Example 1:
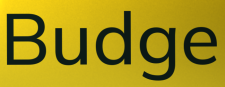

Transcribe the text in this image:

Budge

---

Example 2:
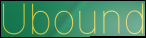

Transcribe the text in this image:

Ubound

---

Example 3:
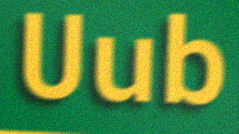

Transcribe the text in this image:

Uub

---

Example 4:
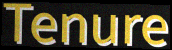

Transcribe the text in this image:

Tenure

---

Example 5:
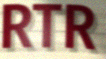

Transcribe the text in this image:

RTR